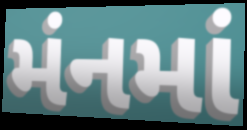
મંનમાં